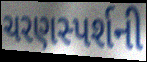
ચરણસ્પર્શની